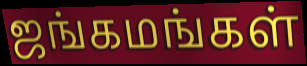
ஜங்கமங்கள்